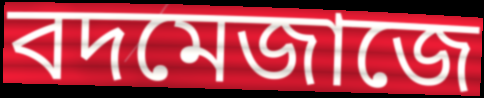
বদমেজাজে